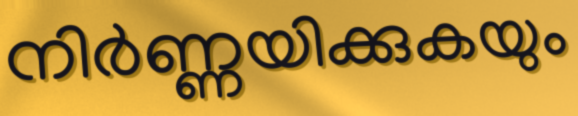
നിർണ്ണയിക്കുകയും